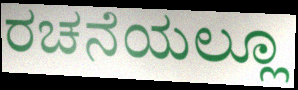
ರಚನೆಯಲ್ಲೂ